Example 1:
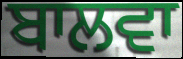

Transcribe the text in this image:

ਬਾਲਵਾ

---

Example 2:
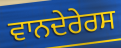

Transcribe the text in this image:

ਵਾਨਦੇਰੇਰਸ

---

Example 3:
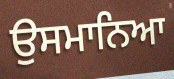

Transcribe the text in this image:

ਉਸਮਾਨਿਆ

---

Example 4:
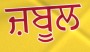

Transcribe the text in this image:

ਜ਼ਬੂਲ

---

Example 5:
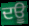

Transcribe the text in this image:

ਦਊ